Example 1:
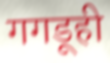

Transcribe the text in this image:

गगडूही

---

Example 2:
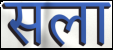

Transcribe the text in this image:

सला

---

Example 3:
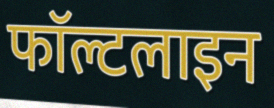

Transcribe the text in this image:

फॉल्टलाइन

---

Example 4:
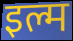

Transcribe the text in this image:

इल्म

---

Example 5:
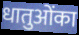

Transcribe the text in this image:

धातुओंका